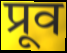
प्रूव